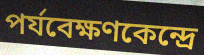
পর্যবেক্ষণকেন্দ্রে